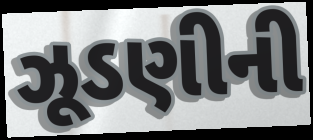
ઝૂડણીની